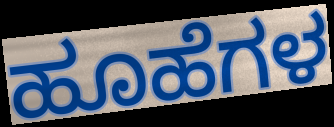
ಹೂಹೆಗಳ